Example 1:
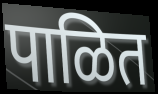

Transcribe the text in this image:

पाळित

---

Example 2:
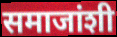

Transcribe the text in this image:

समाजांशी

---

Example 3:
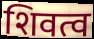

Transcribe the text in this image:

शिवत्व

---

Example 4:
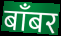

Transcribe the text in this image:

बाँबर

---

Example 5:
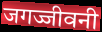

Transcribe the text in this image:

जगज्जीवनी